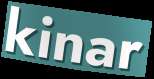
kinar